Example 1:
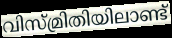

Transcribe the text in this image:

വിസ്മ്രിതിയിലാണ്ട്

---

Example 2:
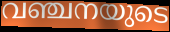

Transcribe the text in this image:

വഞ്ചനയുടെ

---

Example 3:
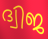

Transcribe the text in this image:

ദ്വിജ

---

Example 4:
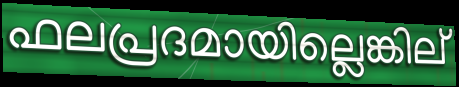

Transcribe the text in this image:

ഫലപ്രദമായില്ലെങ്കില്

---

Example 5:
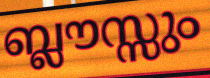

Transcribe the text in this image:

ബ്ലൗസ്സും